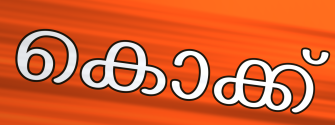
കൊക്ക്